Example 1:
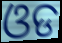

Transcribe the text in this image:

ଓଡ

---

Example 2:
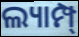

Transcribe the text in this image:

ଲ୍ୟାମ୍ପ୍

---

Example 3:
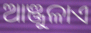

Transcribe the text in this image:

ଆଞ୍ଜୁଳାଏ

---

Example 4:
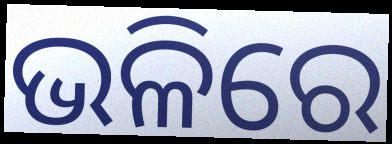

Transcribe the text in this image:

ଭଳିରେ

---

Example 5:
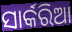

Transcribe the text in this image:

ସାର୍କରିଆ